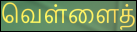
வெள்ளைத்